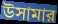
উসামার